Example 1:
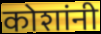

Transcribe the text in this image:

कोशांनी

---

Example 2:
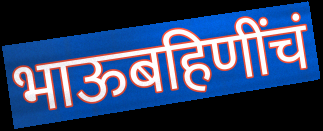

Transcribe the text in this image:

भाऊबहिणींचं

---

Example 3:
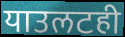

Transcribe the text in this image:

याउलटही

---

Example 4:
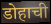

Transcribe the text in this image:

डोहाची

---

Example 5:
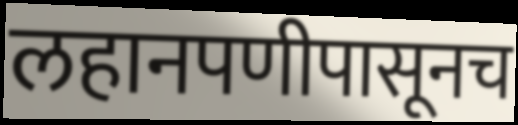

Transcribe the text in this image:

लहानपणीपासूनच